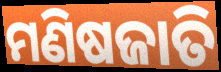
ମଣିଷଜାତି